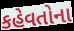
કહેવતોના